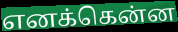
எனக்கென்ன